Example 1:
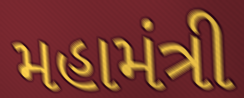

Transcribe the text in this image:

મહામંત્રી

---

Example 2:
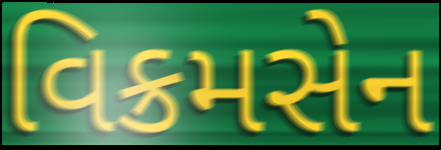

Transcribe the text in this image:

વિક્રમસેન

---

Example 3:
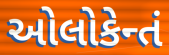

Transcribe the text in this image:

ઓલોકેન્તં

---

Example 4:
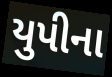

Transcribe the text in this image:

યુપીના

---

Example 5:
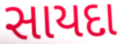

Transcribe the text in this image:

સાયદા